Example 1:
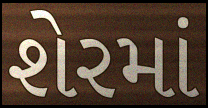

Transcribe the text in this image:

શેરમાં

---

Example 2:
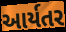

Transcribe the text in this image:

આર્યતર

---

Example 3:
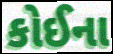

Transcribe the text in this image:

કોઈના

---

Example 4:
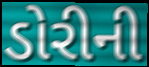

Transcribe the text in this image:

ડોરીની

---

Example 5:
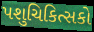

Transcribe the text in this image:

પશુચિકિત્સકો